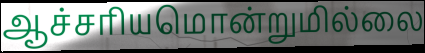
ஆச்சரியமொன்றுமில்லை